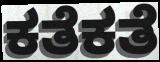
ಕತೆಕತೆ